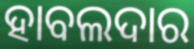
ହାବଲଦାର